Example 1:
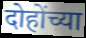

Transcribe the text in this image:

दोहोंच्या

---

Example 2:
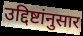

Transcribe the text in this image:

उद्दिष्टांनुसार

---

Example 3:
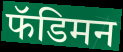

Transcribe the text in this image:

फॅडिमन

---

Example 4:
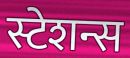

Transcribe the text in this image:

स्टेशन्स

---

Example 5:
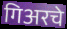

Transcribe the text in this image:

गिअरचे